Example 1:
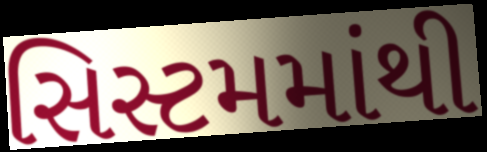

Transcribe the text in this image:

સિસ્ટમમાંથી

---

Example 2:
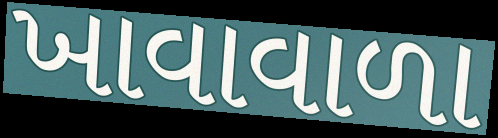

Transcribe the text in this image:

ખાવાવાળા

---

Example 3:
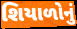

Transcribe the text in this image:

શિયાળોનું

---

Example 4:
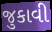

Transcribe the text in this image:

જુકાવી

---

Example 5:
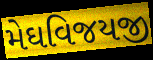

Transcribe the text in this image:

મેઘવિજયજી